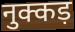
नुक्कड़